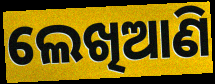
ଲେଖିଆଣି